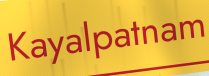
Kayalpatnam